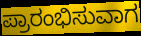
ಪ್ರಾರಂಭಿಸುವಾಗ